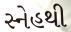
સ્નેહથી